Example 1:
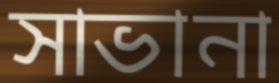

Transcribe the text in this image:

সাভানা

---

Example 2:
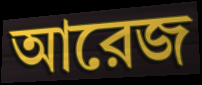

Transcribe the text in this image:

আরেজ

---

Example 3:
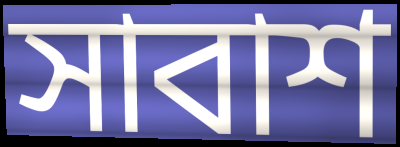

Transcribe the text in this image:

সাবাশ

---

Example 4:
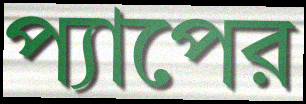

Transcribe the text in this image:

প্যাপের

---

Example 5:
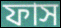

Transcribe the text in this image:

ফাস